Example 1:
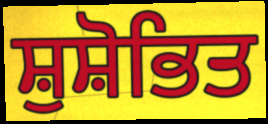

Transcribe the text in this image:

ਸ਼ੁਸ਼ੋਭਿਤ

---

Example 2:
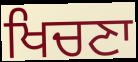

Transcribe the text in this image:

ਖਿਚਣਾ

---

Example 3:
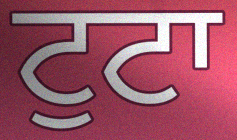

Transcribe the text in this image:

ਟੁਟਾ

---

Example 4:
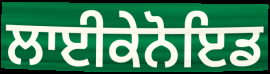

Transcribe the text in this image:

ਲਾਈਕੇਨੋਇਡ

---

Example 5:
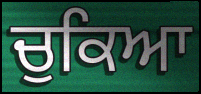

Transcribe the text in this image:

ਚੁਕਿਆ